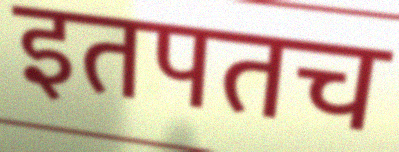
इतपतच